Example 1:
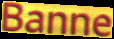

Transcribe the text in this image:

Banne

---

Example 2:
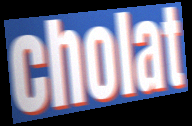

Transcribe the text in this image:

cholat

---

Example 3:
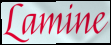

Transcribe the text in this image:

Lamine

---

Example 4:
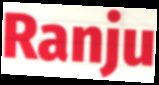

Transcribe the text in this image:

Ranju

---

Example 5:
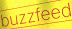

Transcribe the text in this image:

buzzfeed